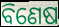
ବିଣେଷ